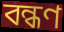
বন্ধণ